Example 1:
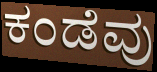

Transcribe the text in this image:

ಕಂಡೆವು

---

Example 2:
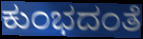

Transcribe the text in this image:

ಕುಂಭದಂತೆ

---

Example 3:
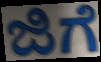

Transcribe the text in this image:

ಜಿಗೆ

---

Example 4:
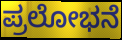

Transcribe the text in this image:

ಪ್ರಲೋಭನೆ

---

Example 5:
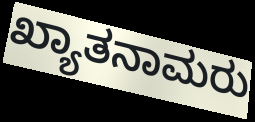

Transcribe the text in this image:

ಖ್ಯಾತನಾಮರು